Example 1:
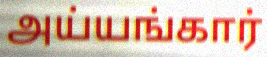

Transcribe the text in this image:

அய்யங்கார்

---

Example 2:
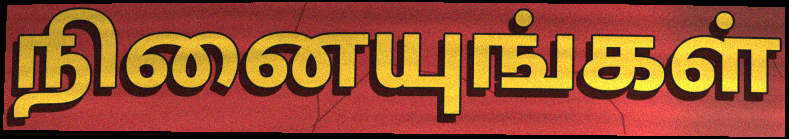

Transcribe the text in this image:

நினையுங்கள்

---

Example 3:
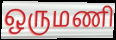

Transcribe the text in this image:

ஒருமணி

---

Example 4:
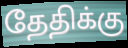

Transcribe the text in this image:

தேதிக்கு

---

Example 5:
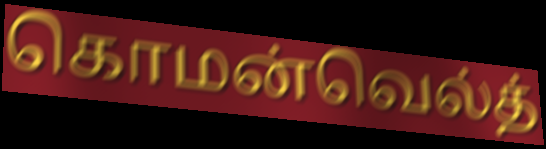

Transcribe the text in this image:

கொமன்வெல்த்